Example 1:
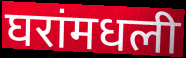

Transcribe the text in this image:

घरांमधली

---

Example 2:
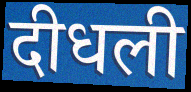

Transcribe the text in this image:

दीधली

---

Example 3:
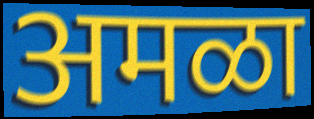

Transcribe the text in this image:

अमळा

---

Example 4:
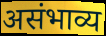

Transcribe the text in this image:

असंभाव्य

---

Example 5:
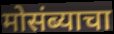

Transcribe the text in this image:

मोसंब्याचा